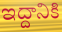
ఇద్దానికి